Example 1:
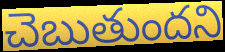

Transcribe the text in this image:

చెబుతుందని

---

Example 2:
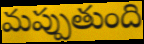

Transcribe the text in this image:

మప్పుతుంది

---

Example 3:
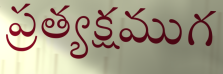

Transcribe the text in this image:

ప్రత్యక్షముగ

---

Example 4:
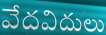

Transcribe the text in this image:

వేదవిదులు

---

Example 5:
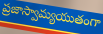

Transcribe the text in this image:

ప్రజాస్వామ్యయుతంగా